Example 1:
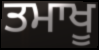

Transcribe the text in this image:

ਤਮਾਖੂ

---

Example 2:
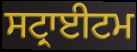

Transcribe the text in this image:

ਸਟ੍ਰਾਈਟਮ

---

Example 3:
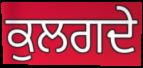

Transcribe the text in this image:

ਕੁਲਗਦੇ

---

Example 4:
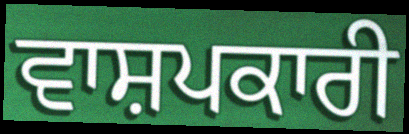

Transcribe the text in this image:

ਵਾਸ਼ਪਕਾਰੀ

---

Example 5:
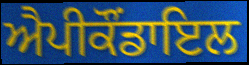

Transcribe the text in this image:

ਐਪੀਕੌਂਡਾਇਲ